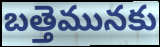
బత్తెమునకు